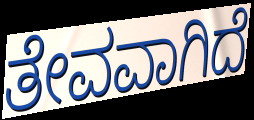
ತೇವವಾಗಿದೆ